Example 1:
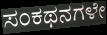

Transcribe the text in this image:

ಸಂಕಥನಗಳೇ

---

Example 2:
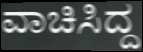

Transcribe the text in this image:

ವಾಚಿಸಿದ್ದ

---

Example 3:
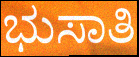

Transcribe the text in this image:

ಭುಸಾತಿ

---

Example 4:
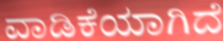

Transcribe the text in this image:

ವಾಡಿಕೆಯಾಗಿದೆ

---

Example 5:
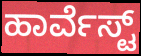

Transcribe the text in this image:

ಹಾರ್ವೆಸ್ಟ್